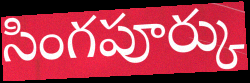
సింగపూర్కు